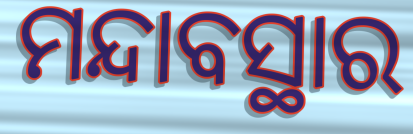
ମନ୍ଦାବସ୍ଥାର